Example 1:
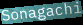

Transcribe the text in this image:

Sonagachi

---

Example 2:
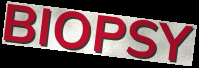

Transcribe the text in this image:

BIOPSY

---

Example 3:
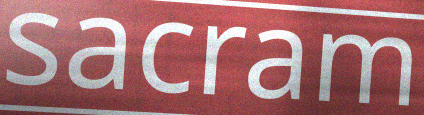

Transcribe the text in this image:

sacram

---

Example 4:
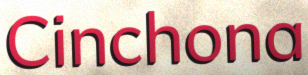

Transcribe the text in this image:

Cinchona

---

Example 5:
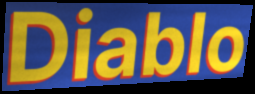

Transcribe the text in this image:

Diablo